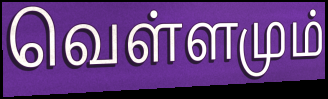
வெள்ளமும்